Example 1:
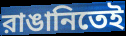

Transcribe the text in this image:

রাঙানিতেই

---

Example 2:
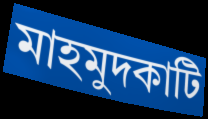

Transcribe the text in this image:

মাহমুদকাটি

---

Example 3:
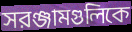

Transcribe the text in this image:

সরঞ্জামগুলিকে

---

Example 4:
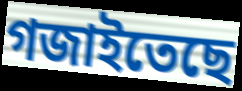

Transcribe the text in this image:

গজাইতেছে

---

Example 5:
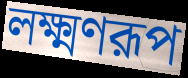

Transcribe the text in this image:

লক্ষ্মণরূপ